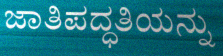
ಜಾತಿಪದ್ಧತಿಯನ್ನು